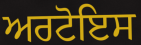
ਅਰਟੋਇਸ